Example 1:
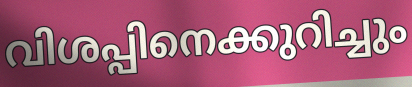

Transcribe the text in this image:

വിശപ്പിനെക്കുറിച്ചും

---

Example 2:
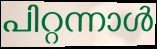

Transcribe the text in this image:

പിറ്റന്നാൾ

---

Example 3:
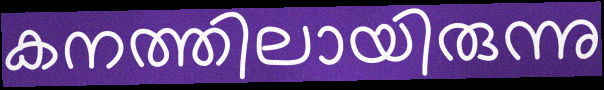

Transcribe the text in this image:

കനത്തിലായിരുന്നു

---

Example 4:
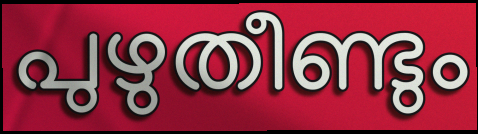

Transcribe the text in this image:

പുഴുതീണ്ടും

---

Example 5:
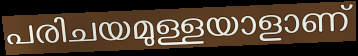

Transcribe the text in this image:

പരിചയമുള്ളയാളാണ്